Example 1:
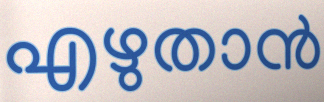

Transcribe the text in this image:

എഴുതാൻ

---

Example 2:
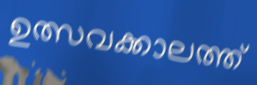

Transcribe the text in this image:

ഉത്സവക്കാലത്ത്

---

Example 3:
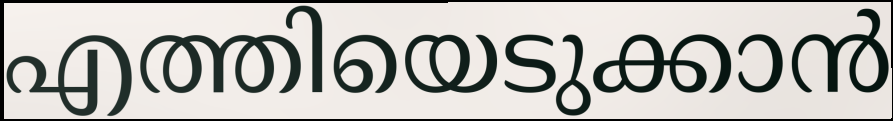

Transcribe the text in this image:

എത്തിയെടുക്കാൻ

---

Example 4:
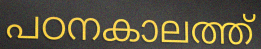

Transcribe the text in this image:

പഠനകാലത്ത്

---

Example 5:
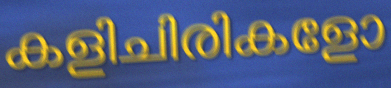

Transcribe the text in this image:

കളിചിരികളോ